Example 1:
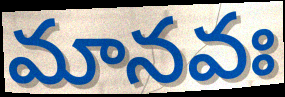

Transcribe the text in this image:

మానవః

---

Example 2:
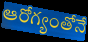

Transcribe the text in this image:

ఆరోగ్యంతోనే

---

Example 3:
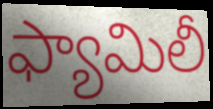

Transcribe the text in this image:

ఫ్యామిలీ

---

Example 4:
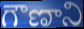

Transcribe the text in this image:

గౌణాని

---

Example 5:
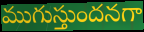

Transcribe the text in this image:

ముగుస్తుందనగా